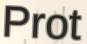
Prot